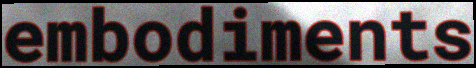
embodiments